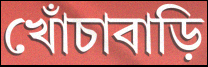
খোঁচাবাড়ি